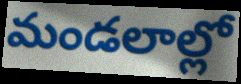
మండలాల్లో